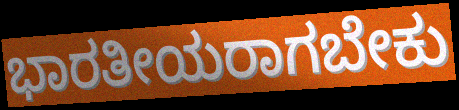
ಭಾರತೀಯರಾಗಬೇಕು